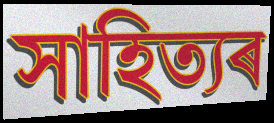
সাহিত্য়ৰ